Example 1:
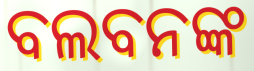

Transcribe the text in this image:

ବଲବନଙ୍କ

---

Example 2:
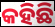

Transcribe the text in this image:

କହିଛି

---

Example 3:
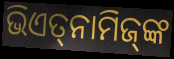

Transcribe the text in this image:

ଭିଏତ୍‌ନାମିଜ୍‌ଙ୍କ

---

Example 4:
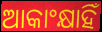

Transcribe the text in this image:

ଆକାଂକ୍ଷାହିଁ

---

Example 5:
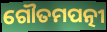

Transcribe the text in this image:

ଗୌତମପତ୍ନୀ